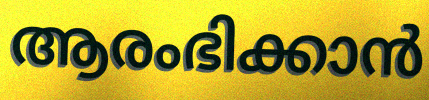
ആരംഭിക്കാൻ